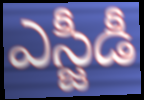
ఎస్జీడీ